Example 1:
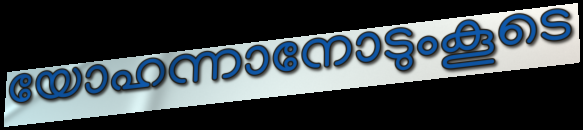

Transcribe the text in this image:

യോഹന്നാനോടുംകൂടെ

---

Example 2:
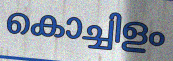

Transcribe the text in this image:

കൊച്ചിളം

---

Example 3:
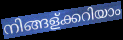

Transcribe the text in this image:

നിങ്ങള്ക്കറിയാം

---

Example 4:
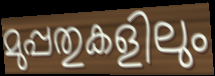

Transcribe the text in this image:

മുപ്പതുകളിലും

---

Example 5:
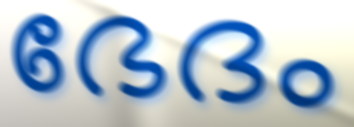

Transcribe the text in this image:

ഭേദം